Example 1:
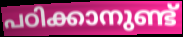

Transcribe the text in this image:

പഠിക്കാനുണ്ട്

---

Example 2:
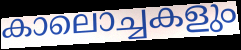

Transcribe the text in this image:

കാലൊച്ചകളും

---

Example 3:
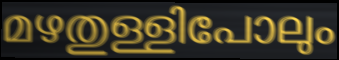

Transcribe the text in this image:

മഴതുള്ളിപോലും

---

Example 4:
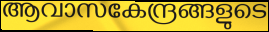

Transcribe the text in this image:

ആവാസകേന്ദ്രങ്ങളുടെ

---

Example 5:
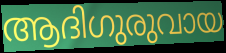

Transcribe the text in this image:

ആദിഗുരുവായ